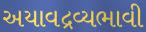
અયાવદ્રવ્યભાવી